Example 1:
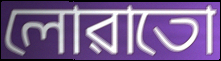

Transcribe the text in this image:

লোৱাতো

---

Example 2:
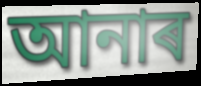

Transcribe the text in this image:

আনাৰ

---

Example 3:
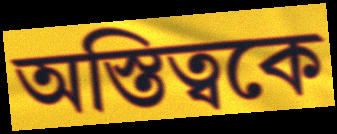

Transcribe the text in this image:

অস্তিত্বকে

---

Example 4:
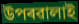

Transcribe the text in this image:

উপৰৱালাই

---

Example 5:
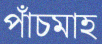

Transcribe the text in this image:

পাঁচমাহ